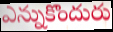
ఎన్నుకొందురు